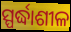
ସ୍ପର୍ଦ୍ଧାଶୀଳ